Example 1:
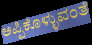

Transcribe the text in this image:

ಅಪ್ಪಿಕೊಳ್ಳುವಂತೆ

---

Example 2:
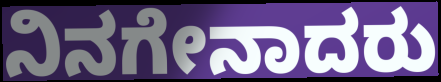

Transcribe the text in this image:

ನಿನಗೇನಾದರು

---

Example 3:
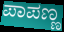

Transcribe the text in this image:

ಪಾಪಣ್ಣ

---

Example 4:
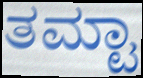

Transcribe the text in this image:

ತಮ್ಟಾ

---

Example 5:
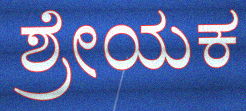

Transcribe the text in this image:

ಶ್ರೇಯಕ